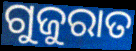
ଗୁଜୁରାତ